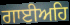
ਗਾਈਅਹਿ